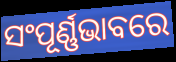
ସଂପୂର୍ଣ୍ଣଭାବରେ